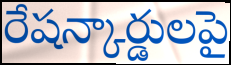
రేషన్కార్డులపై